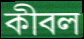
কীবল